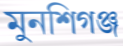
মুনশিগঞ্জ